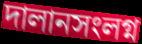
দালানসংলগ্ন